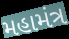
મહામંત્ર